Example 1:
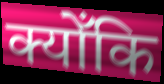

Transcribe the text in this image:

क्योँकि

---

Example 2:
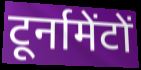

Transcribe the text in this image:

टूर्नामेंटों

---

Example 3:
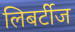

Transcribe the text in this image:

लिबर्टीज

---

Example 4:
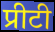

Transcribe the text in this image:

प्रीटी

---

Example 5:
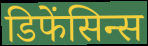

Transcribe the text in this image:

डिफेंसिन्स